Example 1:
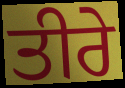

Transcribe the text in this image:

ਤੀਰੇ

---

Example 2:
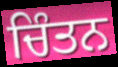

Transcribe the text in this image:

ਚਿੰਤਨ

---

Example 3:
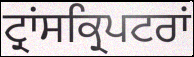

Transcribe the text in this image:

ਟ੍ਰਾਂਸਕ੍ਰਿਪਟਰਾਂ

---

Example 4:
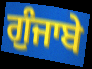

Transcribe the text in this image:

ਗੁੰਜਾਬੇ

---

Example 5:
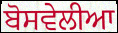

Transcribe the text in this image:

ਬੋਸਵੇਲੀਆ